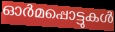
ഓർമപ്പൊട്ടുകൾ